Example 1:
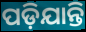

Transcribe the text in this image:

ପଡ଼ିଯାନ୍ତି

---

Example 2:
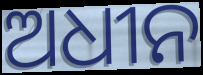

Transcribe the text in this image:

ଅଧୀନ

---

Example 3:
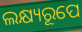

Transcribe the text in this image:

ଲକ୍ଷ୍ୟରୂପେ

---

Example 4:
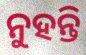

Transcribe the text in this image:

ନୁହନ୍ତି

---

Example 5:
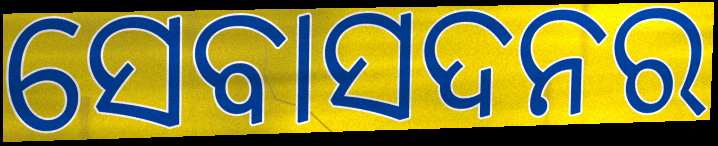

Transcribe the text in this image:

ସେବାସଦନର